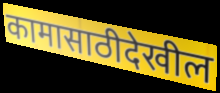
कामासाठीदेखील